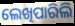
ଲେଖିପାରିଲି